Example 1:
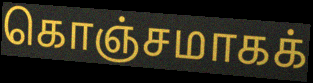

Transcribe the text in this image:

கொஞ்சமாகக்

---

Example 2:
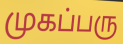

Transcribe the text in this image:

முகப்பரு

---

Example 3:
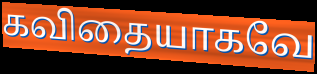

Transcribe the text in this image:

கவிதையாகவே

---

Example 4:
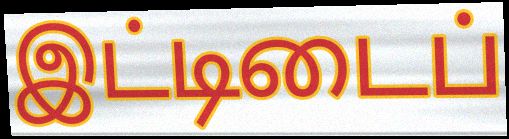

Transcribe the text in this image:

இட்டிடைப்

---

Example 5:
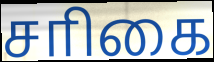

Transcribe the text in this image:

சரிகை